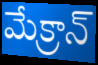
మేక్రాన్